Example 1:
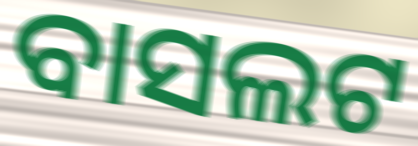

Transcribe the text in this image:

ବାସଲଟ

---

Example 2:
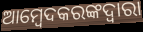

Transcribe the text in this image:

ଆମ୍ବେଦକରଙ୍କଦ୍ୱାରା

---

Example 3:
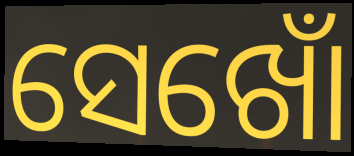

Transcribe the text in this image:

ସେଖୋଁ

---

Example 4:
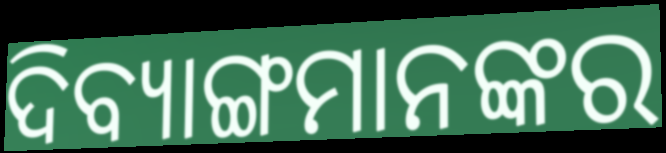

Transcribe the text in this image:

ଦିବ୍ୟାଙ୍ଗମାନଙ୍କର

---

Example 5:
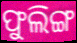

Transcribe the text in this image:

ଫୁଲିଙ୍ଗ